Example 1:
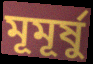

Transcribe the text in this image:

মূমূর্ষু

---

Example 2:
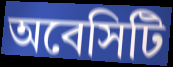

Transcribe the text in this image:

অবেসিটি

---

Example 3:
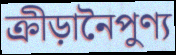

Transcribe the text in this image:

ক্রীড়ানৈপুণ্য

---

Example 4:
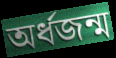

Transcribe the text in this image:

অর্ধজন্ম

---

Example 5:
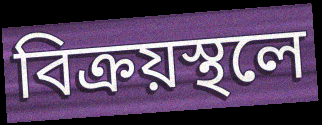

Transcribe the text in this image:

বিক্রয়স্থলে